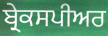
ਬ੍ਰੇਕਸਪੀਅਰ